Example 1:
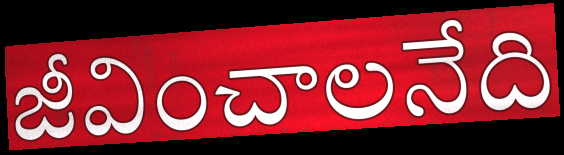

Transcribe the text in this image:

జీవించాలనేది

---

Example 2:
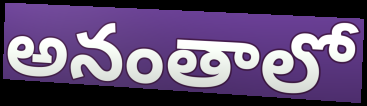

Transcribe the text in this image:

అనంతాలో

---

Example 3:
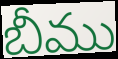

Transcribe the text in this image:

బీము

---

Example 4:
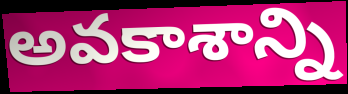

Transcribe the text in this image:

అవకాశాన్ని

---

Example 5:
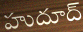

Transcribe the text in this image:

హుదూద్